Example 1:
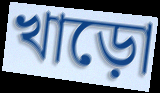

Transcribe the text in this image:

খাড়ো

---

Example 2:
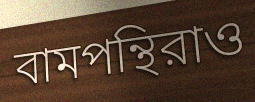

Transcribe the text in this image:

বামপন্থিরাও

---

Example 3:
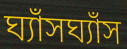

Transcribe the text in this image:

ঘ্যাঁসঘ্যাঁস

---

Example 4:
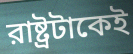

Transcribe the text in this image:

রাষ্ট্রটাকেই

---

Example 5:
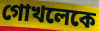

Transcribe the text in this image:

গোখলেকে